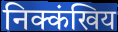
निक्कंखिय